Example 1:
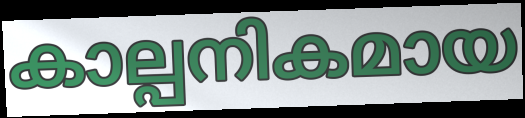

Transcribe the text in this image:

കാല്പനികമായ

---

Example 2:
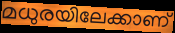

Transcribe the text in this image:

മധുരയിലേക്കാണ്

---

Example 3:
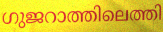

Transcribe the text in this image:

ഗുജറാത്തിലെത്തി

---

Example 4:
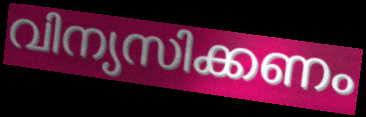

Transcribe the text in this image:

വിന്യസിക്കണം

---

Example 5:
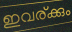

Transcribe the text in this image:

ഇവര്ക്കും